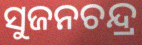
ସୁଜନଚନ୍ଦ୍ର